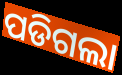
ପଡିଗଲା